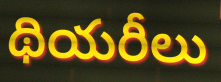
థియరీలు